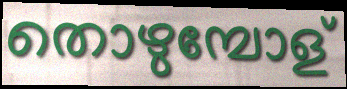
തൊഴുമ്പോള്